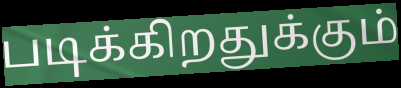
படிக்கிறதுக்கும்